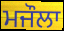
ਮਜੌਲਾ